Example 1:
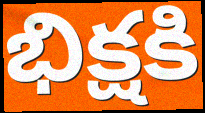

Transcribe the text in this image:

భిక్షకి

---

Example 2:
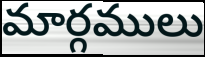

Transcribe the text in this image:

మార్గములు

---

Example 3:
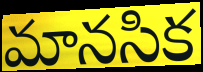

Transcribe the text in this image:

మానసిక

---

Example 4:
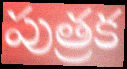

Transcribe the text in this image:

పుత్రక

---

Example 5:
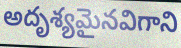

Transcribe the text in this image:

అదృశ్యమైనవిగాని